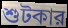
শুটকার